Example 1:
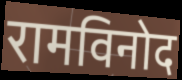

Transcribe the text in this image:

रामविनोद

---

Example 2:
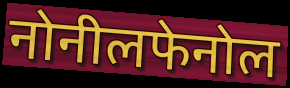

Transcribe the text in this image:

नोनीलफेनोल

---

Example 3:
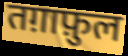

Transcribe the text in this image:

तग़ाफ़ुल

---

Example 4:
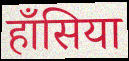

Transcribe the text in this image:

हाँसिया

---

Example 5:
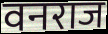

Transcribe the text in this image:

वनराज